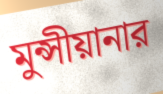
মুন্সীয়ানার